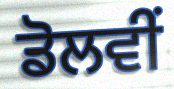
ਡੋਲਵੀਂ